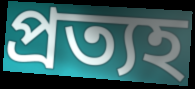
প্রত্যহ